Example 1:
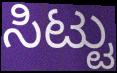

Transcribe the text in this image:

ಸಿಟ್ಟು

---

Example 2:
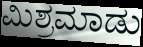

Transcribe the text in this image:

ಮಿಶ್ರಮಾಡು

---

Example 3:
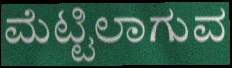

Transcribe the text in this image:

ಮೆಟ್ಟಿಲಾಗುವ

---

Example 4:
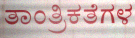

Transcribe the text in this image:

ತಾಂತ್ರಿಕತೆಗಳ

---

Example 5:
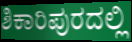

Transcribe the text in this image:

ಶಿಕಾರಿಪುರದಲ್ಲಿ